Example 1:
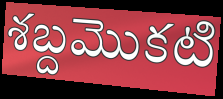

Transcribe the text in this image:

శబ్దమొకటి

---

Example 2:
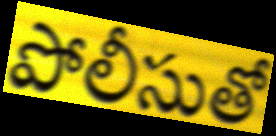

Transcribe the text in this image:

పోలీసుతో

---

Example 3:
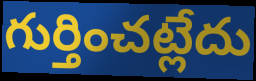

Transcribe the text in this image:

గుర్తించట్లేదు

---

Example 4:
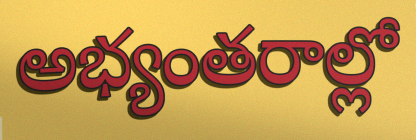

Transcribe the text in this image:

అభ్యంతరాల్లో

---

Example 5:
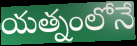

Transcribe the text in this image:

యత్నంలోనే